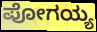
ಪೋಗಯ್ಯ